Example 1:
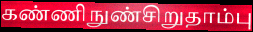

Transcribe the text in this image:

கண்ணிநுண்சிறுதாம்பு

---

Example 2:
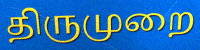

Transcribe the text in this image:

திருமுறை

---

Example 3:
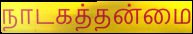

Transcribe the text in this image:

நாடகத்தன்மை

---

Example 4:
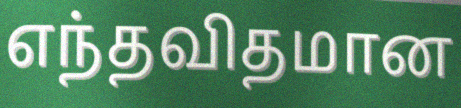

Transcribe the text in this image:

எந்தவிதமான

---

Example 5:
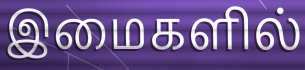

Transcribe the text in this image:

இமைகளில்